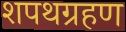
शपथग्रहण